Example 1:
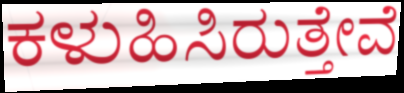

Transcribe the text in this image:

ಕಳುಹಿಸಿರುತ್ತೇವೆ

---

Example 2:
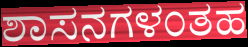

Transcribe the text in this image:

ಶಾಸನಗಳಂತಹ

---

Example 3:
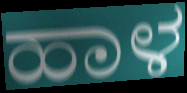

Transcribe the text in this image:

ಹಾಳ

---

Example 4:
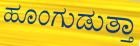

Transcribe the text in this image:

ಹೂಂಗುಡುತ್ತಾ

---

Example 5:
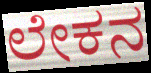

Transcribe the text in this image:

ಲೇಕನ